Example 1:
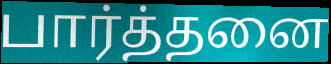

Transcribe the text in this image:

பார்த்தனை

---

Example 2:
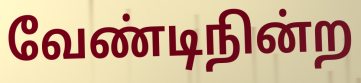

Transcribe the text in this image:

வேண்டிநின்ற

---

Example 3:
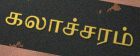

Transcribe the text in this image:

கலாச்சரம்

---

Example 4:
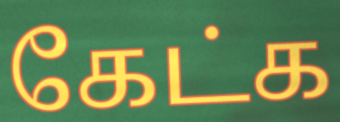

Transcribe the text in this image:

கேட்க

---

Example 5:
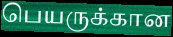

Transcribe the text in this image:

பெயருக்கான